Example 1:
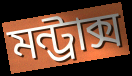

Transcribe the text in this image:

মন্ট্রাক্স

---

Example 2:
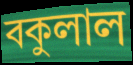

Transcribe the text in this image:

বকুলাল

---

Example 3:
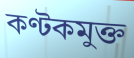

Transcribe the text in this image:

কণ্টকমুক্ত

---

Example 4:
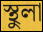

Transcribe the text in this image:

স্থুলা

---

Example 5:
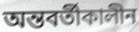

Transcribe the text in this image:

অন্তবর্তীকালীন